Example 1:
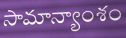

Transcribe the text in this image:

సామాన్యాంశం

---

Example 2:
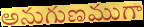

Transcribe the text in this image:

అనుగుణముగా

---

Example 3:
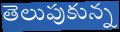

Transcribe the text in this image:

తెలుపుకున్న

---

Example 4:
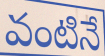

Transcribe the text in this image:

వంటినే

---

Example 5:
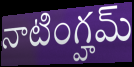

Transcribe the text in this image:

నాటింగ్హమ్